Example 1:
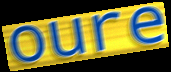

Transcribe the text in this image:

oure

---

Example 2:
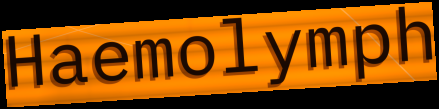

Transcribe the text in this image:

Haemolymph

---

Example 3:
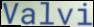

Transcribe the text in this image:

Valvi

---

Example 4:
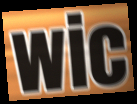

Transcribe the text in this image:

wic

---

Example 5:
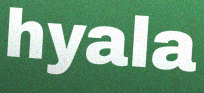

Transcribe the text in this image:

hyala